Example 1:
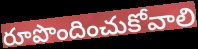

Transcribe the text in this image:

రూపొందించుకోవాలి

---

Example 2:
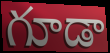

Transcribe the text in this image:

గూడా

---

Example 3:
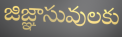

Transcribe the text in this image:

జిజ్ఞాసువులకు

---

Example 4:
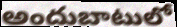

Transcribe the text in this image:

అందుబాటులో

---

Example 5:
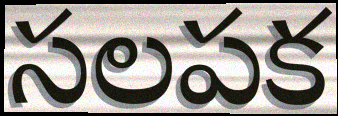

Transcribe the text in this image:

సలపక